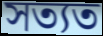
সত্যত